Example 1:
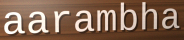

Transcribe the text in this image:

aarambha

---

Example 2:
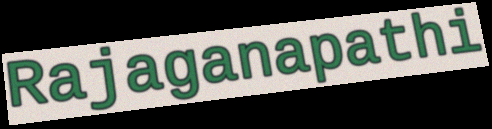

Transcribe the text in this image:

Rajaganapathi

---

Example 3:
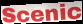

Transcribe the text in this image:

Scenic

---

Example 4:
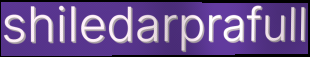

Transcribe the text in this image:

shiledarprafull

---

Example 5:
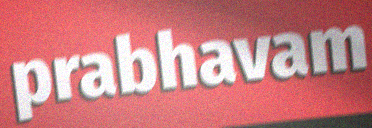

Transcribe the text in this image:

prabhavam